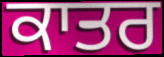
ਕਾਤਰ